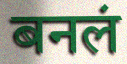
बनलं